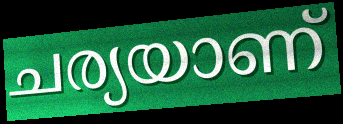
ചര്യയാണ്